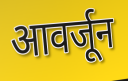
आवर्जून